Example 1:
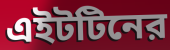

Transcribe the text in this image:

এইটটিনের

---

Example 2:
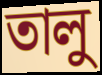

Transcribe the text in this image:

তালু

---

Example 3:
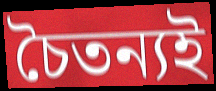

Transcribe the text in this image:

চৈতন্যই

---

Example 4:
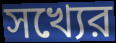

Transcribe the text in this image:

সখ্যের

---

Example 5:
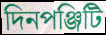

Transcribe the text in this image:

দিনপঞ্জিটি